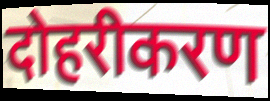
दोहरीकरण